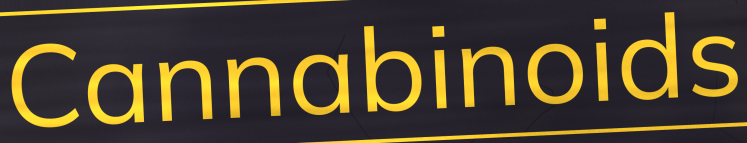
Cannabinoids